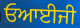
ਓਆਈਜੀ